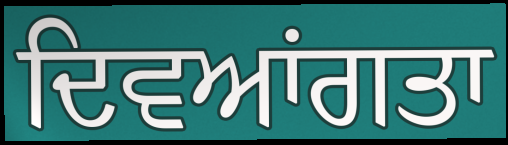
ਦਿਵਆਂਗਤਾ